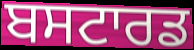
ਬਸਟਾਰਡ